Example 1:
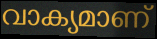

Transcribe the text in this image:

വാക്യമാണ്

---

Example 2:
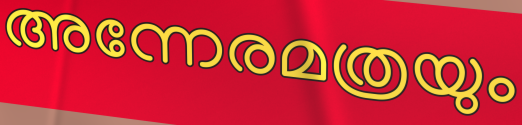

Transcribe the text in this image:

അന്നേരമത്രയും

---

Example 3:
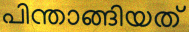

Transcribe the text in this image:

പിന്താങ്ങിയത്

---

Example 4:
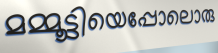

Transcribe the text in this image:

മമ്മൂട്ടിയെപ്പോലൊരു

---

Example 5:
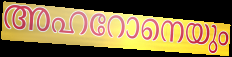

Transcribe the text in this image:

അഹറോനെയും